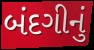
બંદગીનું